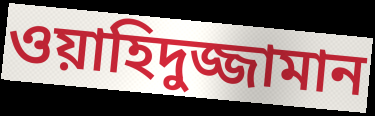
ওয়াহিদুজ্জামান